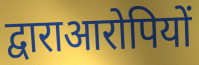
द्वाराआरोपियों